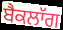
ਬੈਕਲਾੱਗ